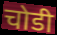
चोडी